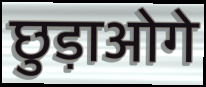
छुड़ाओगे